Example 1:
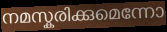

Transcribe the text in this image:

നമസ്കരിക്കുമെന്നോ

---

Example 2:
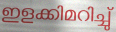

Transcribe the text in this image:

ഇളക്കിമറിച്ചു്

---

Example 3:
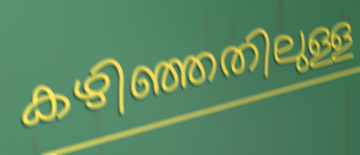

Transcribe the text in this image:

കഴിഞ്ഞതിലുള്ള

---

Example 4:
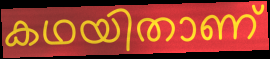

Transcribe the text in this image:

കഥയിതാണ്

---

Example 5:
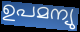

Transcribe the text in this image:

ഉപമന്യു